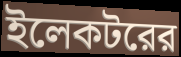
ইলেকটরের